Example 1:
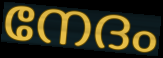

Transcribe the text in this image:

നേദം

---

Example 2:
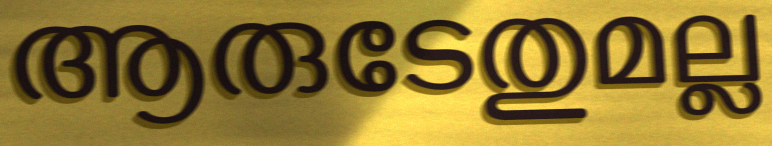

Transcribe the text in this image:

ആരുടേതുമല്ല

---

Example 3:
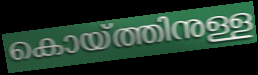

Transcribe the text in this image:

കൊയ്ത്തിനുള്ള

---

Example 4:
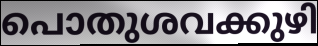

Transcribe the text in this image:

പൊതുശവക്കുഴി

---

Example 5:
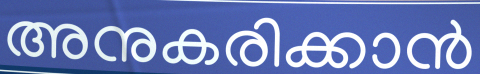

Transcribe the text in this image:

അനുകരിക്കാൻ